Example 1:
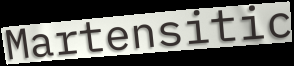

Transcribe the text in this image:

Martensitic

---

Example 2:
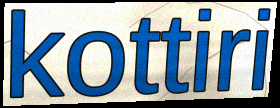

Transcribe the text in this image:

kottiri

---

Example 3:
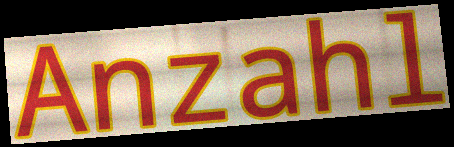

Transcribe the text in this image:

Anzahl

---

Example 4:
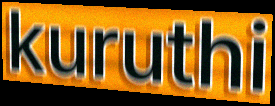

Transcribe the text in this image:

kuruthi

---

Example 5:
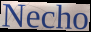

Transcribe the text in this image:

Necho